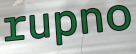
rupno